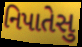
નિપાતેસુ